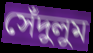
সেঁদুলুম